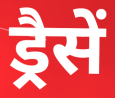
ड्रैसें